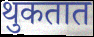
थुकतात